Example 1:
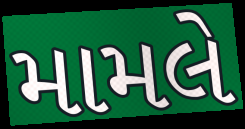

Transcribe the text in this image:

મામલે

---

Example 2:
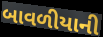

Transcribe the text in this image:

બાવળીયાની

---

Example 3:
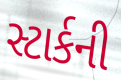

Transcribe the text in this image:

સ્ટાર્કની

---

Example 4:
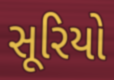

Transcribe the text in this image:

સૂરિયો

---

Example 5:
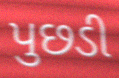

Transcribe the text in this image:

પુછડી